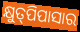
କ୍ଷୁତ୍‍ପିପାସାର